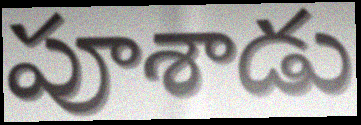
పూశాడు